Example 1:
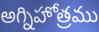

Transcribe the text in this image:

అగ్నిహోత్రము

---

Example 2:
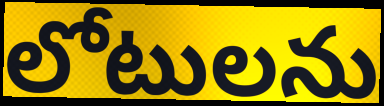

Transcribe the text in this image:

లోటులను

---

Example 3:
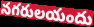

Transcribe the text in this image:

నగరులయందు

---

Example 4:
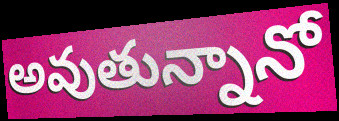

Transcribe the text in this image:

అవుతున్నానో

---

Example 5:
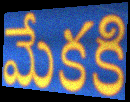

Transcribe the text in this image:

మేకకి